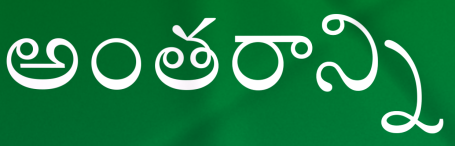
అంతరాన్ని